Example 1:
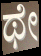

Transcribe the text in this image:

ಥೇ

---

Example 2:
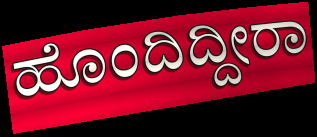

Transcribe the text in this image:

ಹೊಂದಿದ್ದೀರಾ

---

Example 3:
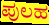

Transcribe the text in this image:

ಪುಲಹ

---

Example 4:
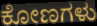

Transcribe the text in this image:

ಕೋಣಗಳು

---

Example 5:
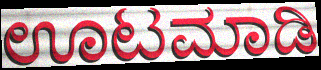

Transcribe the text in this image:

ಊಟಮಾಡಿ